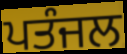
ਪਤੰਜਲ